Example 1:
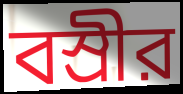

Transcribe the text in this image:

বস্রীর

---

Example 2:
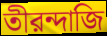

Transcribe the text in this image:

তীরন্দাজি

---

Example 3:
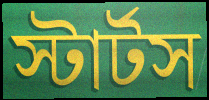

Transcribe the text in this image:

স্টার্টস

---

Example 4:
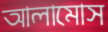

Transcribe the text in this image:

আলামোস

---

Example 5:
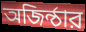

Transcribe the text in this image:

অজিন্ঠার